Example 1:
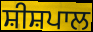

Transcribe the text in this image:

ਸ਼ੀਸ਼ਪਾਲ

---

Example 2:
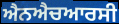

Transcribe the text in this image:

ਐਨਐਚਆਰਸੀ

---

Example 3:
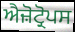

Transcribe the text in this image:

ਐਜ਼ੋਟ੍ਰੋਪਸ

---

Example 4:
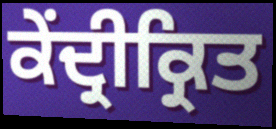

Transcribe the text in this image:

ਕੇਂਦ੍ਰੀਕ੍ਰਿਤ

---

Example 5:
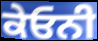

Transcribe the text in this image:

ਕੇਓਨੀ